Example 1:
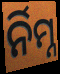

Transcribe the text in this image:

ର୍ନିମ୍ନ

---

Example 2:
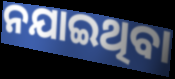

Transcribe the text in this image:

ନଯାଇଥିବା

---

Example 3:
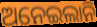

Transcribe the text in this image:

ଅନେଇଲାନି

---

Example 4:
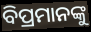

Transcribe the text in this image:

ବିପ୍ରମାନଙ୍କୁ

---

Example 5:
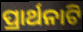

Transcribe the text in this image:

ପ୍ରାର୍ଥନାଟି